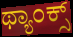
ಥ್ಯಾಂಕ್ಸ್